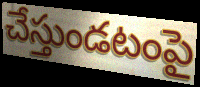
చేస్తుండటంపై